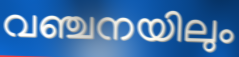
വഞ്ചനയിലും